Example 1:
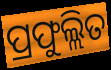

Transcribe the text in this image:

ପ୍ରଫୁଲ୍ଲିତ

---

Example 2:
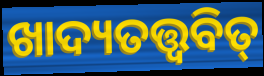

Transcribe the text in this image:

ଖାଦ୍ୟତତ୍ତ୍ୱବିତ୍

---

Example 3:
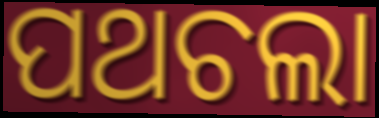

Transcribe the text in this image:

ପଥଚଲା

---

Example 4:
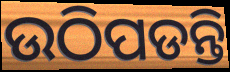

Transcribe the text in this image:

ଉଠିପଡନ୍ତି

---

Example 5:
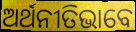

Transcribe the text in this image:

ଅର୍ଥନୀତିଭାବେ